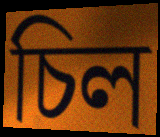
চিল